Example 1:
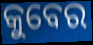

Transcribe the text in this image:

କୁବେର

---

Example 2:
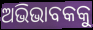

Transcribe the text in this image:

ଅଭିଭାବକକୁ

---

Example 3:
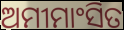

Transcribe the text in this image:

ଅମୀମାଂସିତ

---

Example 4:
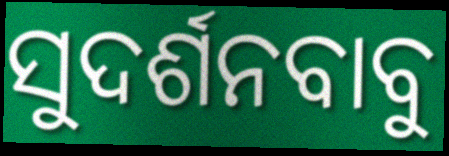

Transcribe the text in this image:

ସୁଦର୍ଶନବାବୁ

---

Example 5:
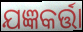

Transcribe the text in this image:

ଯଜ୍ଞକର୍ତ୍ତା